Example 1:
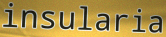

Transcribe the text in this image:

insularia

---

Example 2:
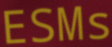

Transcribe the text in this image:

ESMs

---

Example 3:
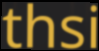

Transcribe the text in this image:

thsi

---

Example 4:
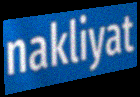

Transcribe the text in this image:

nakliyat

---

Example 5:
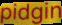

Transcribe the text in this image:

pidgin